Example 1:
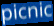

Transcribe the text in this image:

picnic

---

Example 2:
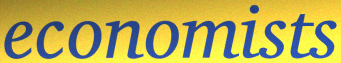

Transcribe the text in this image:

economists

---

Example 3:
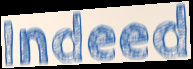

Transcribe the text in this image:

Indeed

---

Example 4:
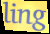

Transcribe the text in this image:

ling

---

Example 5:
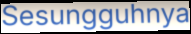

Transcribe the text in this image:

Sesungguhnya